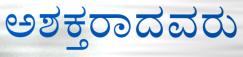
ಅಶಕ್ತರಾದವರು